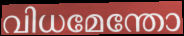
വിധമേന്തോ